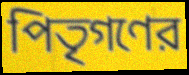
পিতৃগণের